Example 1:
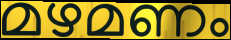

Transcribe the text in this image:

മഴമണം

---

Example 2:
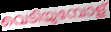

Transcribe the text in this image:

വെടിയുമ്പോള്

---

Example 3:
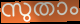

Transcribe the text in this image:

സുതാം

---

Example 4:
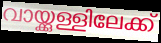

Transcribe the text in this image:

വായ്ക്കുള്ളിലേക്ക്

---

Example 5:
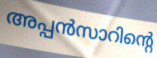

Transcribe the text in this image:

അപ്പൻസാറിന്റെ